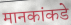
मानकांकडे